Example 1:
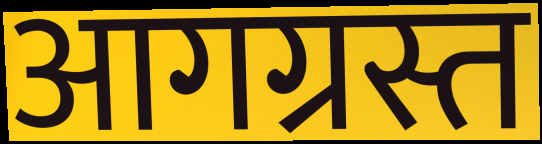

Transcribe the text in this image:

आगग्रस्त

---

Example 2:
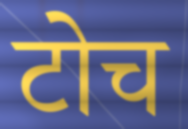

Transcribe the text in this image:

टोच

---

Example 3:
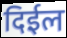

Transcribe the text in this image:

दिईल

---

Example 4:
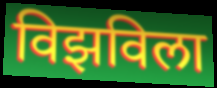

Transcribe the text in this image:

विझविला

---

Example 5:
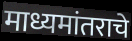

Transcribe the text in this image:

माध्यमांतराचे